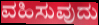
ವಹಿಸುವುದು